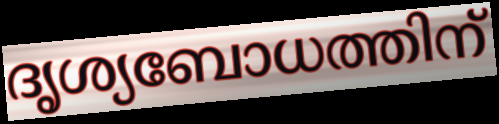
ദൃശ്യബോധത്തിന്